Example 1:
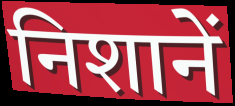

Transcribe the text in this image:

निशानें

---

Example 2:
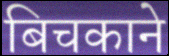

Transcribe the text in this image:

बिचकाने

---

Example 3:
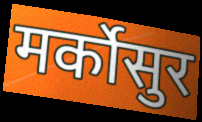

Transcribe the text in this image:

मर्कोसुर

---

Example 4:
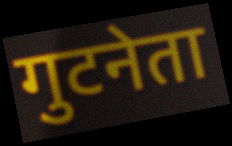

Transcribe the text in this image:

गुटनेता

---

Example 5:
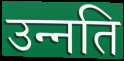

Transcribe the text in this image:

उन्‍नति